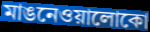
মাঙনেওয়ালোকো